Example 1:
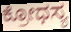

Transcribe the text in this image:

ಕ್ರೋಧಸ್ಯ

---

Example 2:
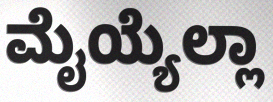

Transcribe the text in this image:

ಮೈಯ್ಯೆಲ್ಲಾ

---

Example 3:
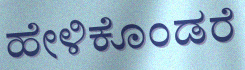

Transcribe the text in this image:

ಹೇಳಿಕೊಂಡರೆ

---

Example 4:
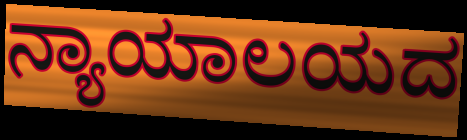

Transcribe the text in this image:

ನ್ಯಾಯಾಲಯದ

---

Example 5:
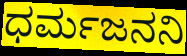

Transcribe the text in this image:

ಧರ್ಮಜನನಿ